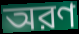
অরণ